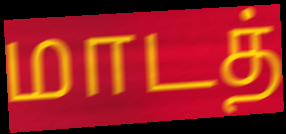
மாடத்